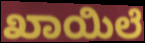
ಖಾಯಿಲೆ